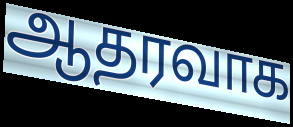
ஆதரவாக